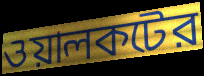
ওয়ালকটের